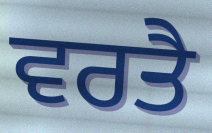
ਵਰਤੈ